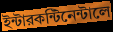
ইন্টারকন্টিনেন্টালে